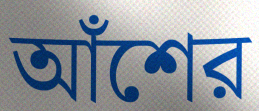
আঁশের